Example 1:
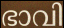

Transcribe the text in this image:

ഭാവി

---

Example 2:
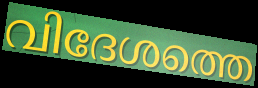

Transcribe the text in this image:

വിദേശത്തെ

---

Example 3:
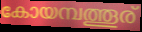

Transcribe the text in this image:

കോയമ്പത്തൂര്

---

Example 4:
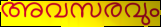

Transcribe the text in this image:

അവസരവും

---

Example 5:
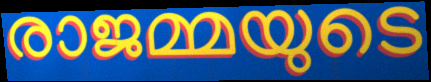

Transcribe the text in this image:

രാജമ്മയുടെ